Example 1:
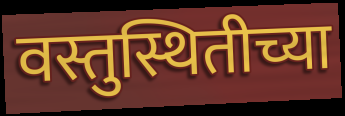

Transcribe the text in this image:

वस्तुस्थितीच्या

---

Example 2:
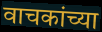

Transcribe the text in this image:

वाचकांच्या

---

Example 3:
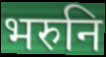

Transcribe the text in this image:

भरुनि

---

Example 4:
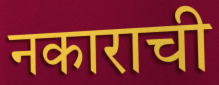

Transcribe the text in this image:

नकाराची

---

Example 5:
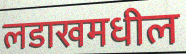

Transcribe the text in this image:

लडाखमधील